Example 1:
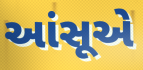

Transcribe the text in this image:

આંસૂએ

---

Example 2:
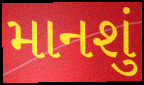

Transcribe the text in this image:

માનશું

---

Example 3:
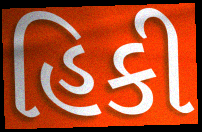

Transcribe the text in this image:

હિકી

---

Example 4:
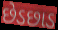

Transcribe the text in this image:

છેડછાડ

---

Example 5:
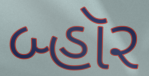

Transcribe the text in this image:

બ્હૉર